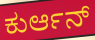
ಕುರ್ಆನ್